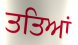
ਤਤਿਆਂ